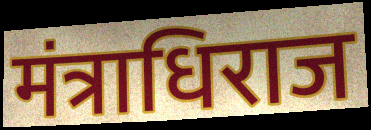
मंत्राधिराज